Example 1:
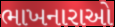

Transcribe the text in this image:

ભાખનારાઓ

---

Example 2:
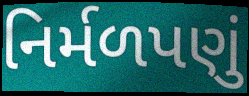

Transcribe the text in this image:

નિર્મળપણું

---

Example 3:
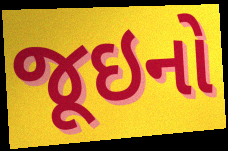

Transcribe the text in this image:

જૂઇનો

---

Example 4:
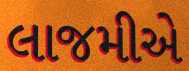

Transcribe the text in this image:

લાજમીએ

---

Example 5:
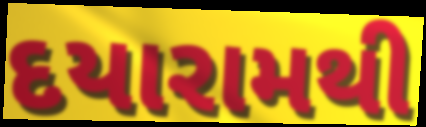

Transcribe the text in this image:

દયારામથી